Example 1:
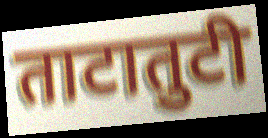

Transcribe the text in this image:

ताटातुटी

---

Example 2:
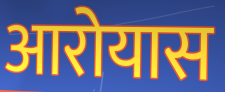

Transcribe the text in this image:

आरोयास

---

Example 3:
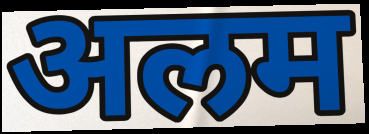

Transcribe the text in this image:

अलम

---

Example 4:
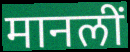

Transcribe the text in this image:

मानलीं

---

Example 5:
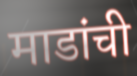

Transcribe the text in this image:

माडांची